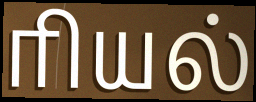
ரியல்